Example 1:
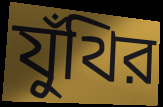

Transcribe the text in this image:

যুঁথির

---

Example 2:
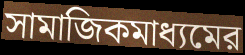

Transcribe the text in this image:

সামাজিকমাধ্যমের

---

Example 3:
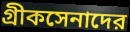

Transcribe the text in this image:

গ্রীকসেনাদের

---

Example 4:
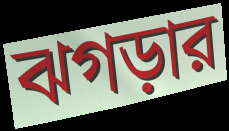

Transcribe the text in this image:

ঝগড়ার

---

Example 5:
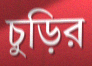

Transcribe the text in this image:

চুড়ির